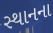
સ્થાનના